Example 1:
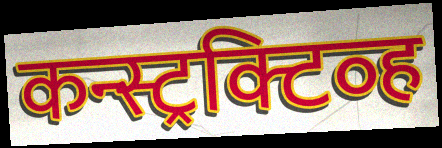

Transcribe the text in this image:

कन्स्ट्रक्टिव्ह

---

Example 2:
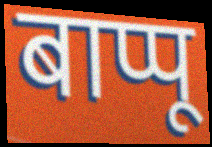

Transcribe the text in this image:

बाप्पू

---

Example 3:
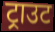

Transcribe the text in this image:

ट्राउट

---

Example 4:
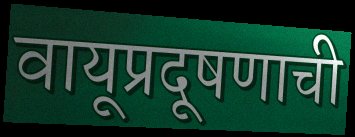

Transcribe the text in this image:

वायूप्रदूषणाची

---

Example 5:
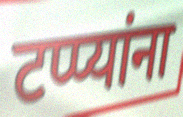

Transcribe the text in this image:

टप्प्यांना